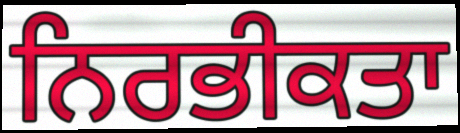
ਨਿਰਭੀਕਤਾ